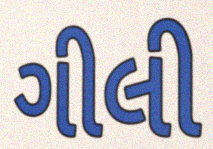
ગીલી